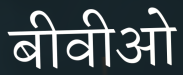
बीवीओ